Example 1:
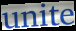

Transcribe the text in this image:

unite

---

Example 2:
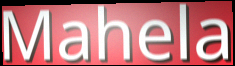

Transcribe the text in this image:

Mahela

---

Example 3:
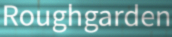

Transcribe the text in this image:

Roughgarden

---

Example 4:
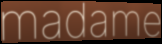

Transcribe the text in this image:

madame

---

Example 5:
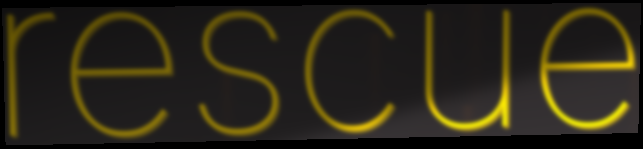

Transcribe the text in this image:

rescue